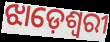
ଝାଡ଼େଶ୍ୱରୀ